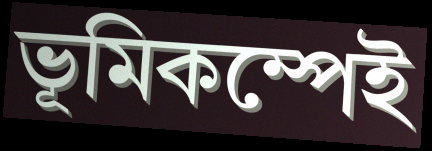
ভূমিকম্পেই